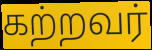
கற்றவர்